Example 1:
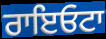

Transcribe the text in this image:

ਰਾਇਓਟਾ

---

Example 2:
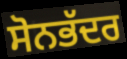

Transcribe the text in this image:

ਸੋਨਭੱਦਰ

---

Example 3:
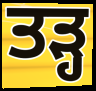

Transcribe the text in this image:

ਤੜ੍ਹ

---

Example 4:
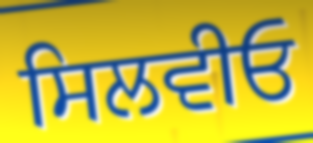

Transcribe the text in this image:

ਸਿਲਵੀਓ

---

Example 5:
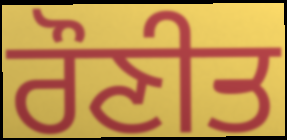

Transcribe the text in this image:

ਰੌਣੀਤ